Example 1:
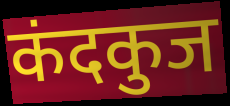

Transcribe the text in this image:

कंदकुज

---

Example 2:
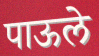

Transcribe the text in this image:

पाऊले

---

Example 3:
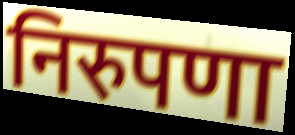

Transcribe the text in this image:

निरुपणा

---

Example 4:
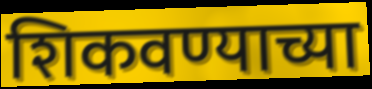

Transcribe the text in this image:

शिकवण्याच्या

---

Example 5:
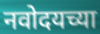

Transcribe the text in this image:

नवोदयच्या